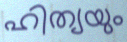
ഹിത്യയും